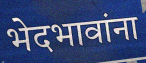
भेदभावांना